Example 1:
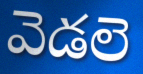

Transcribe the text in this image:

వెడలె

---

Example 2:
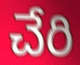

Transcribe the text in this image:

చేరి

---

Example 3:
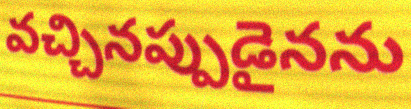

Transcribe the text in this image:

వచ్చినప్పుడైనను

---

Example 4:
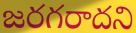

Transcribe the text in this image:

జరగరాదని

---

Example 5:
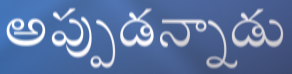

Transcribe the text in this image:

అప్పుడన్నాడు